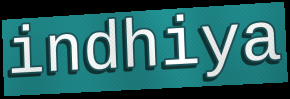
indhiya